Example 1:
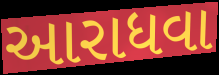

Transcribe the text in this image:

આરાધવા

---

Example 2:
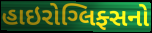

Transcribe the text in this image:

હાઇરોગ્લિફ્સનો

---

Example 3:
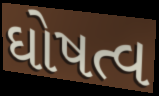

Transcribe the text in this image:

ઘોષત્વ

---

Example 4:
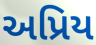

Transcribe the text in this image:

અપ્રિય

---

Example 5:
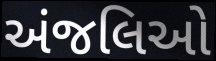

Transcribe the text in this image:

અંજલિઓ